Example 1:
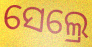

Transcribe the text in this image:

ସେଲ୍ରେ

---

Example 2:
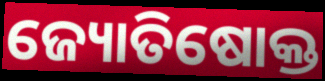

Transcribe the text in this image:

ଜ୍ୟୋତିଷୋକ୍ତ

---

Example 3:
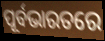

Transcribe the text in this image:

ପୂର୍ବଭାରତରେ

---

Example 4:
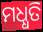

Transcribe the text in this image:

ମଧ୍ଧତି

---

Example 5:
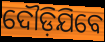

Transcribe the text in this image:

ଦୌଡ଼ିଯିବେ